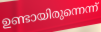
ഉണ്ടായിരുന്നെന്ന്